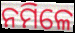
ନମିଳେ